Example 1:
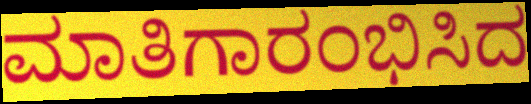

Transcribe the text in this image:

ಮಾತಿಗಾರಂಭಿಸಿದ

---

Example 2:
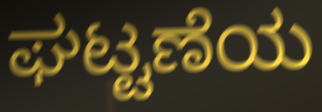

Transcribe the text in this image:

ಘಟ್ಟಣೆಯ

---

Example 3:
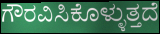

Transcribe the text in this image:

ಗೌರವಿಸಿಕೊಳ್ಳುತ್ತದೆ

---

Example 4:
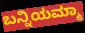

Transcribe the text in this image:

ಬನ್ನಿಯಮ್ಮಾ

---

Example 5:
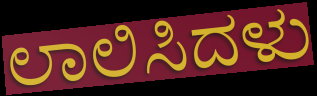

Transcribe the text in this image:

ಲಾಲಿಸಿದಳು